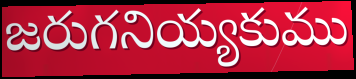
జరుగనియ్యకుము